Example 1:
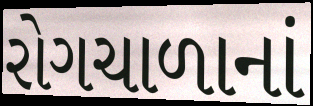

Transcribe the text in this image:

રોગચાળાનાં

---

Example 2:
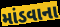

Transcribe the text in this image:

માંડવાના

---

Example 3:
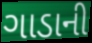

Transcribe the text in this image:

ગાડાની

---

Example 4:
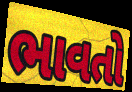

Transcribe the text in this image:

ભાવતો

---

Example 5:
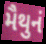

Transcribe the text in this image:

મૈથુનં